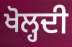
ਖੋਲ੍ਹਦੀ